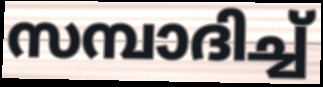
സമ്പാദിച്ച്